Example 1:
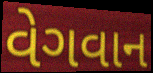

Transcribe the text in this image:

વેગવાન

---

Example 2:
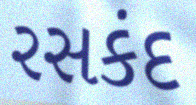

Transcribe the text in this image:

રસકંદ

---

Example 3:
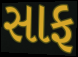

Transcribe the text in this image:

સાફ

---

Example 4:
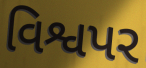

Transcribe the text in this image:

વિશ્વપર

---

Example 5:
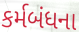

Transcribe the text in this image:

કર્મબંધના